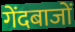
गेंदबाजों